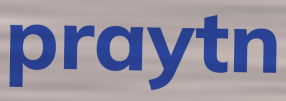
praytn